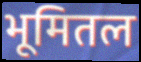
भूमितल